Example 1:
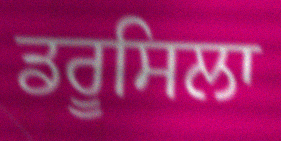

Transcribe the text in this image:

ਡਰੂਸਿਲਾ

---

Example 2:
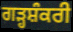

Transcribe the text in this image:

ਗੜ੍ਹਸ਼ੰਕਰੀ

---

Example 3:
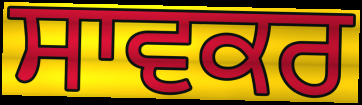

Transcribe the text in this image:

ਸਾਵਕਰ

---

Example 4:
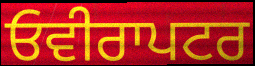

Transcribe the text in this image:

ਓਵੀਰਾਪਟਰ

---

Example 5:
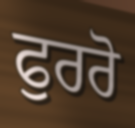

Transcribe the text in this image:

ਫੁਰਰੋ